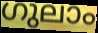
ഗുലാം